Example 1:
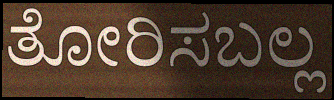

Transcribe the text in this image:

ತೋರಿಸಬಲ್ಲ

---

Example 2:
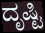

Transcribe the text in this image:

ದೃಷ್ಟಿ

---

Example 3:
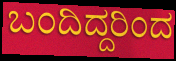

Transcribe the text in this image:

ಬಂದಿದ್ದರಿಂದ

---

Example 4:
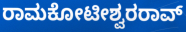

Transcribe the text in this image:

ರಾಮಕೋಟೀಶ್ವರರಾವ್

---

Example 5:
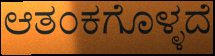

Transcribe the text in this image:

ಆತಂಕಗೊಳ್ಳದೆ